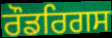
ਰੌਡਰਿਗਸ